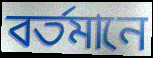
বৰ্তমানে